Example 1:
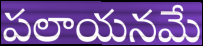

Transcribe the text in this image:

పలాయనమే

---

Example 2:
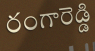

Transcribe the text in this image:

రంగారెడ్డి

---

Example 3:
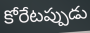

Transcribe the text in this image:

కోరేటప్పుడు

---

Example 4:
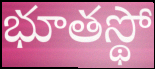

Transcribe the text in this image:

భూతస్థో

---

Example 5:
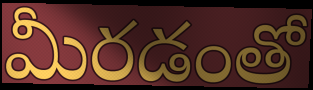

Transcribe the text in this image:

మీరడంతో